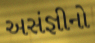
અસંજ્ઞીનો